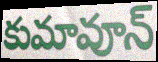
కుమావూన్